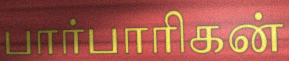
பார்பாரிகன்